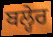
ਬਲ੍ਹੇਰ